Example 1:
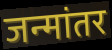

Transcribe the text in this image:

जन्मांतर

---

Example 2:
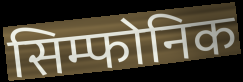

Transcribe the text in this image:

सिम्फोनिक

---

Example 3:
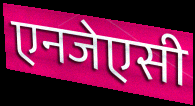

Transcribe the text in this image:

एनजेएसी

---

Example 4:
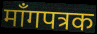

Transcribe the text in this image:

माँगपत्रक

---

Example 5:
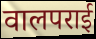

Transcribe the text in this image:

वालपराई